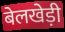
बेलखेड़ी